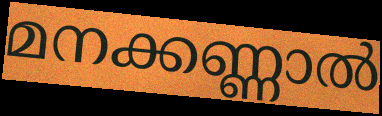
മനക്കണ്ണാൽ